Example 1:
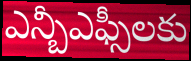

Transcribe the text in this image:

ఎన్బీఎఫ్సీలకు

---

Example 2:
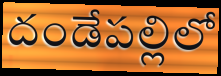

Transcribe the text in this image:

దండేపల్లిలో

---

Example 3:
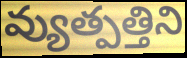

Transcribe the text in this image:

వ్యుత్పత్తిని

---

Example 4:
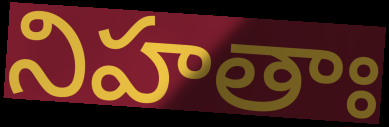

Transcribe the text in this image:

నిహతాః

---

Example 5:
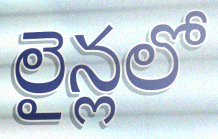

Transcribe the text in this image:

లైన్లలో